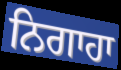
ਨਿਗਾਹਾ